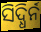
ସିଦ୍ଧିର୍ନ